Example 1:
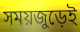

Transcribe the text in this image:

সময়জুড়েই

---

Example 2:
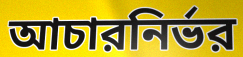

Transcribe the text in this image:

আচারনির্ভর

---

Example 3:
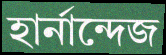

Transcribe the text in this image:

হার্নান্দেজ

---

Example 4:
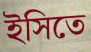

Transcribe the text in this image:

ইসিতে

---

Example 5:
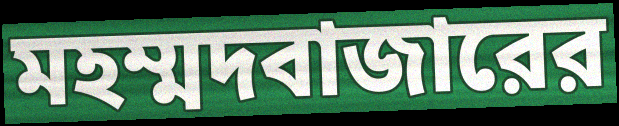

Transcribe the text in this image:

মহম্মদবাজারের